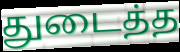
துடைத்த